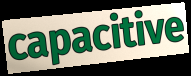
capacitive